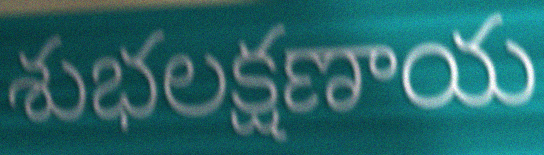
శుభలక్షణాయ